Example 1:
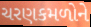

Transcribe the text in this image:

ચરણકમળોને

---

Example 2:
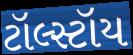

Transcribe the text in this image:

ટૉલ્સ્ટૉય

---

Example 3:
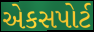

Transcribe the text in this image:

એકસપોર્ટ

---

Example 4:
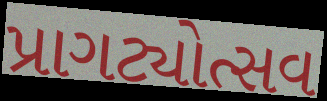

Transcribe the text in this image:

પ્રાગટ્યોત્સવ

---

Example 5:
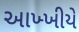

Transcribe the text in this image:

આખ્ખીયે